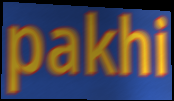
pakhi